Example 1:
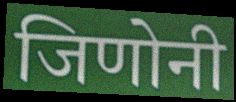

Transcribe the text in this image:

जिणोनी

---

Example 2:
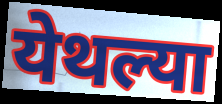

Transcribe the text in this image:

येथल्या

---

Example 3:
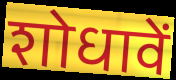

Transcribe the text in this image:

शोधावें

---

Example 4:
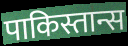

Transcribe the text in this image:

पाकिस्तान्स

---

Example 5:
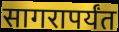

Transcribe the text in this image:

सागरापर्यंत